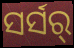
ସର୍ସର୍